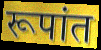
रूपांत